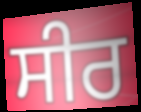
ਸੀਰ